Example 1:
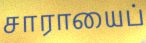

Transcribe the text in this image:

சாராயைப்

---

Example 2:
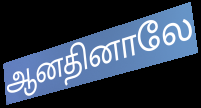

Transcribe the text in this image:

ஆனதினாலே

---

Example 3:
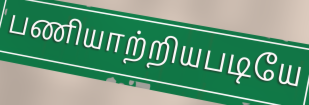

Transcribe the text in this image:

பணியாற்றியபடியே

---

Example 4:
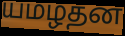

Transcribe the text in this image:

யமழதன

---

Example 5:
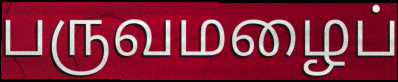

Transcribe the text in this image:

பருவமழைப்